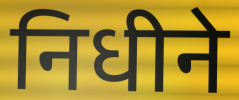
निधीने